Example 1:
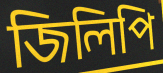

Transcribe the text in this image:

জিলিপি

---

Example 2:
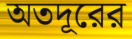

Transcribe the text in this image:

অতদূরের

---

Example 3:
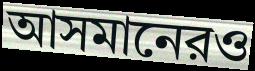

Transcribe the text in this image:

আসমানেরও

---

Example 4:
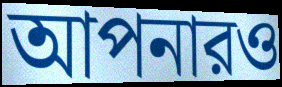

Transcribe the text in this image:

আপনারও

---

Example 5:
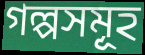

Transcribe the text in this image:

গল্পসমূহ